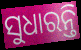
ସୁଧାରନ୍ତି